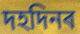
দহদিনৰ